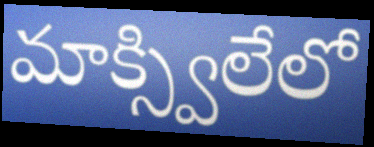
మాక్స్విలేలో